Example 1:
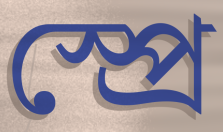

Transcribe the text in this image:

স্প্রে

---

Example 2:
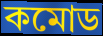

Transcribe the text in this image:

কমোড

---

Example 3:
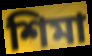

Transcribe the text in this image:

শিমা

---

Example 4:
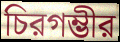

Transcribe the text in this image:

চিরগম্ভীর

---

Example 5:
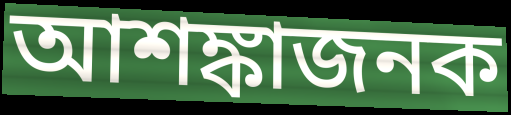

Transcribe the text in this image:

আশঙ্কাজনক